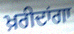
ਖ਼ਰੀਦਾਂਗਾ